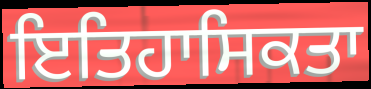
ਇਤਿਹਾਸਿਕਤਾ